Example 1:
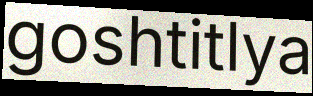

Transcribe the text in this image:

goshtitlya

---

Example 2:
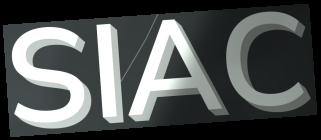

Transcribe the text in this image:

SIAC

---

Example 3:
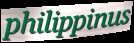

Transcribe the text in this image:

philippinus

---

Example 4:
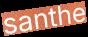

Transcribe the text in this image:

santhe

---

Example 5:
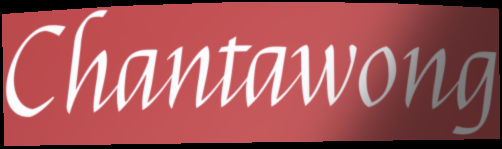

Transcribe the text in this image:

Chantawong